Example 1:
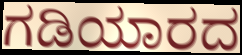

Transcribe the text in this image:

ಗಡಿಯಾರದ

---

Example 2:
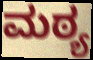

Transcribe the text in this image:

ಮಠ್ಯ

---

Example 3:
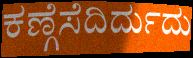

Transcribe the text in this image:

ಕಣ್ಗೆಸೆದಿರ್ದುದು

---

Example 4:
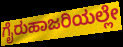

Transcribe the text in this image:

ಗೈರುಹಾಜರಿಯಲ್ಲೇ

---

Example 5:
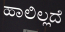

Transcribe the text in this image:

ಹಾಲಿಲ್ಲದೆ